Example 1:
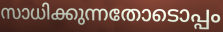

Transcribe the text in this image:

സാധിക്കുന്നതോടൊപ്പം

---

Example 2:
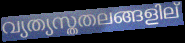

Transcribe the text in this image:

വ്യത്യസ്തതലങ്ങളില്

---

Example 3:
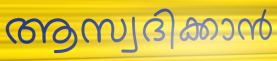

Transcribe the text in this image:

ആസ്വദിക്കാൻ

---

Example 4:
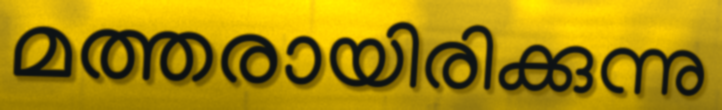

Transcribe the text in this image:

മത്തരായിരിക്കുന്നു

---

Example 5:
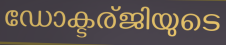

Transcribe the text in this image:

ഡോക്ടര്ജിയുടെ